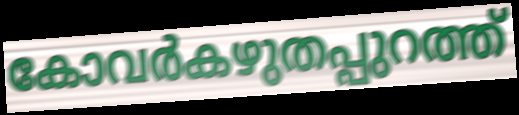
കോവർകഴുതപ്പുറത്ത്